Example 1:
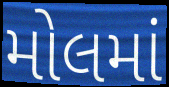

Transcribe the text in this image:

મોલમાં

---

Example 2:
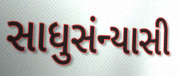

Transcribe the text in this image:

સાધુસંન્યાસી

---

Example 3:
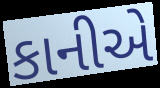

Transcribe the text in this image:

કાનીએ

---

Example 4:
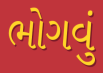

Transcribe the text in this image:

ભોગવું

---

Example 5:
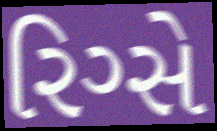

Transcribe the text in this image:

રિગ્સે